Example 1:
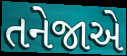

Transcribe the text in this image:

તનેજાએ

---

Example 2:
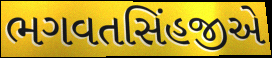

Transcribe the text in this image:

ભગવતસિંહજીએ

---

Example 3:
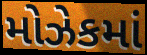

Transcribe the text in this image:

મોઝેકમાં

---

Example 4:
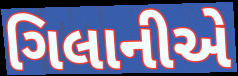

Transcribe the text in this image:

ગિલાનીએ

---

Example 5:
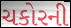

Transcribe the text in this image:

ચકોરની